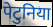
पेटुनिया